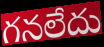
గనలేదు